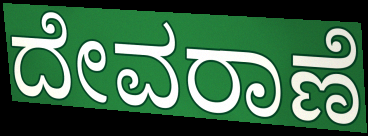
ದೇವರಾಣೆ